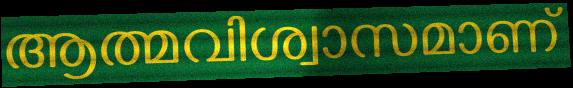
ആത്മവിശ്വാസമാണ്